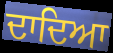
ਦਾਦਿਆ